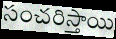
సంచరిస్తాయి